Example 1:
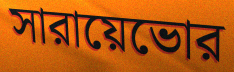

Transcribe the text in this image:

সারায়েভোর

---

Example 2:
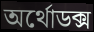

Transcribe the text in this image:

অর্থোডক্স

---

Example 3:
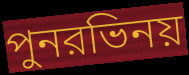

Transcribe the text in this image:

পুনরভিনয়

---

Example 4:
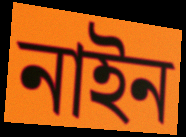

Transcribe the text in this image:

নাইন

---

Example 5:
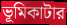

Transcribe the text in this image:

ভূমিকাটার